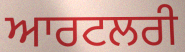
ਆਰਟਲਰੀ